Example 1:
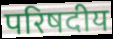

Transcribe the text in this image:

परिषदीय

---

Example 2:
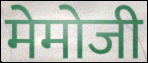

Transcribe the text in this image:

मेमोजी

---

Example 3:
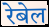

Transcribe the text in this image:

रेबेल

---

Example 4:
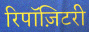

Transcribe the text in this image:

रिपॉज़िटरी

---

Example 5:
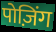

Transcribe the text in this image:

पोज़िंग